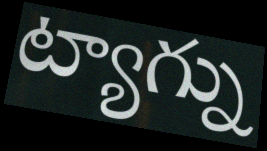
ట్యాగ్ను